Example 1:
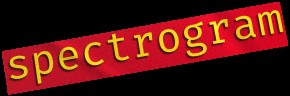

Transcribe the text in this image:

spectrogram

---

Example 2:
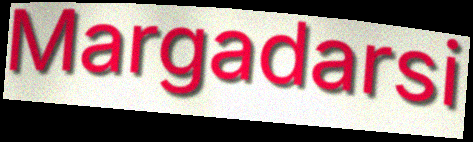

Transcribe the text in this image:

Margadarsi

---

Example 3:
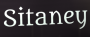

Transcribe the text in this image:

Sitaney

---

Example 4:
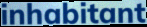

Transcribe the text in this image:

inhabitant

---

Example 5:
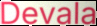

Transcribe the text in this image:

Devala